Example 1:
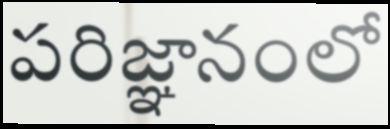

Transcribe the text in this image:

పరిజ్ఞానంలో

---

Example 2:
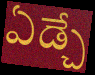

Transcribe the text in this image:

ఏడ్చే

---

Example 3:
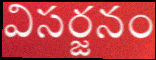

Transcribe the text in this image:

విసర్జనం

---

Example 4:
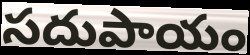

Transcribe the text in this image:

సదుపాయం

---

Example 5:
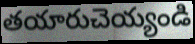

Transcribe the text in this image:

తయారుచెయ్యండి